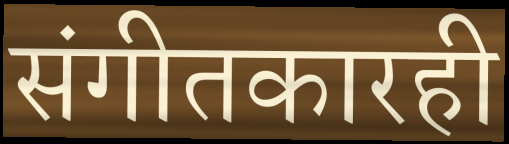
संगीतकारही